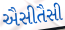
ઐસીતૈસી